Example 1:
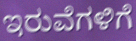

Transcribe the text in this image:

ಇರುವೆಗಳಿಗೆ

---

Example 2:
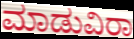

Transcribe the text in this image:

ಮಾಡುವಿರಾ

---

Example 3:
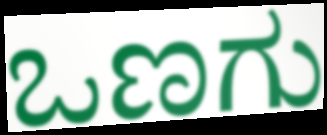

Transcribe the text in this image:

ಒಣಗು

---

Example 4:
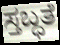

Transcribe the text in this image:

ಸ್ತಬ್ಧತೆ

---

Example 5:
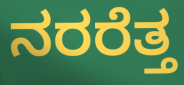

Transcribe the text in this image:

ನರರೆತ್ತ